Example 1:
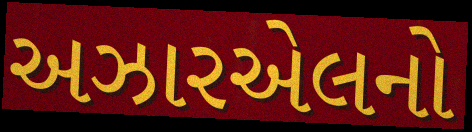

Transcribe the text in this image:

અઝારએલનો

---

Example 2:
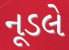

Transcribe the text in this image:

નૂડલે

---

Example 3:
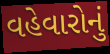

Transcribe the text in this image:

વહેવારોનું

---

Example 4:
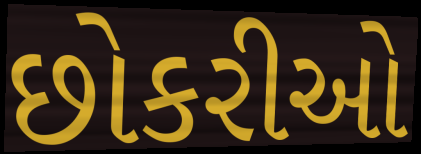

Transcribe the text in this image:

છોકરીઓ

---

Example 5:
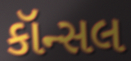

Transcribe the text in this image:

કૉન્સલ